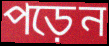
পড়েন